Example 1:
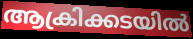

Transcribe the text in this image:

ആക്രിക്കടയിൽ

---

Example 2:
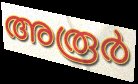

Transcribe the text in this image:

അരൂർ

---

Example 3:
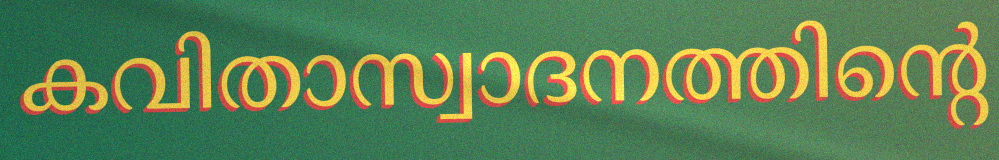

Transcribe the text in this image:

കവിതാസ്വാദനത്തിന്റെ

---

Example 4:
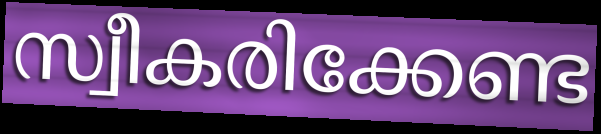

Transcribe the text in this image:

സ്വീകരിക്കേണ്ട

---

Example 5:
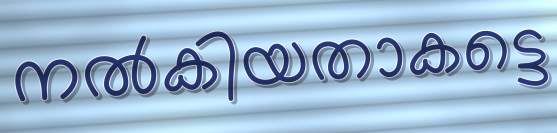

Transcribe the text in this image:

നൽകിയതാകട്ടെ